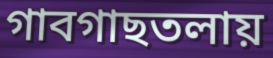
গাবগাছতলায়